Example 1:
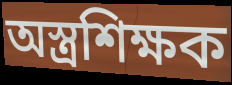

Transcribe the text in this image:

অস্ত্রশিক্ষক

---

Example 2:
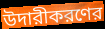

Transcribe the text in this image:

উদারীকরণের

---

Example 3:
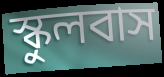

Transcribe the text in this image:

স্কুলবাস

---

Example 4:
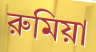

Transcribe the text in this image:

রুমিয়া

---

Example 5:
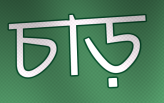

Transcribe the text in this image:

চাড়